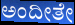
ಅಂದೀತೇ